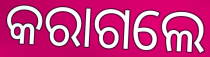
କରାଗଲେ